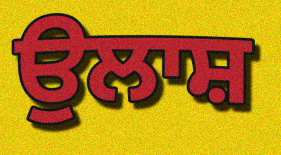
ਉਲਾਸ਼